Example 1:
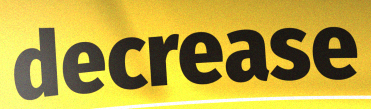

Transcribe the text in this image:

decrease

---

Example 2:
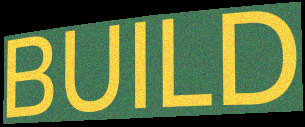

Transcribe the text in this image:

BUILD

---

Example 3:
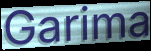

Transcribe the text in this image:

Garima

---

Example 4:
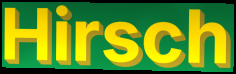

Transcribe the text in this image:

Hirsch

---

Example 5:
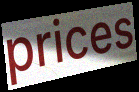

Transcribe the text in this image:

prices